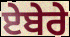
ਏਬੇਰੇ